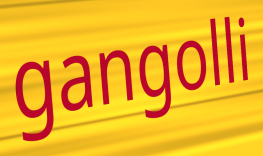
gangolli